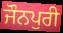
ਜੌਨਪੁਰੀ